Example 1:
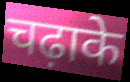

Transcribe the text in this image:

चढ़ाके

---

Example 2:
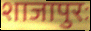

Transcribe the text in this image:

शाजापुरः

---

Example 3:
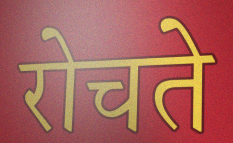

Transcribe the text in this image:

रोचते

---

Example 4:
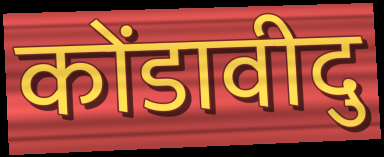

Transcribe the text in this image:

कोंडावीदु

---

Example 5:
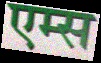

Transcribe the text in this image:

एम्‍स